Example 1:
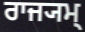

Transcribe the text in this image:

ਰਾਜ੍ਯਮ੍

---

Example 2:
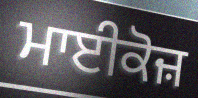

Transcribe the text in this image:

ਮਾਈਕੋਜ਼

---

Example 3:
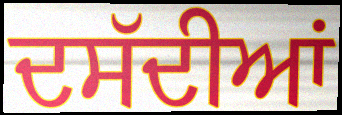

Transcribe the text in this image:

ਦਸੱਦੀਆਂ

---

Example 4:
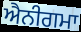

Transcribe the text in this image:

ਐਨੀਗਮਾ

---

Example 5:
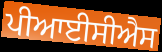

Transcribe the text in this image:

ਪੀਆਈਸੀਐਸ